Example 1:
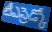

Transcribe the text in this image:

టీఎస్రెడ్కో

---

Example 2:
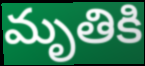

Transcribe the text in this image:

మృతికి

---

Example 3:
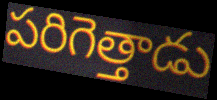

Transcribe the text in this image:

పరిగెత్తాడు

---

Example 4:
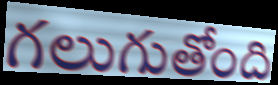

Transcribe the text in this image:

గలుగుతోంది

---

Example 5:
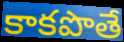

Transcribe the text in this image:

కాకపొతే